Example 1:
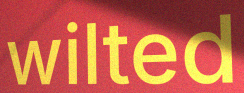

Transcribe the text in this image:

wilted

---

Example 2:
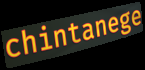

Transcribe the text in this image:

chintanege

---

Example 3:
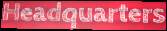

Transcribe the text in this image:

Headquarters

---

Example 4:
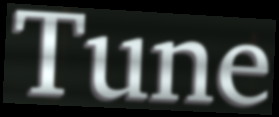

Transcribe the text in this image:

Tune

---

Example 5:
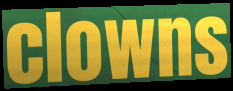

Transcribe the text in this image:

clowns